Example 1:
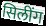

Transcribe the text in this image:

सिलींग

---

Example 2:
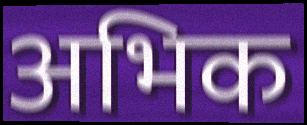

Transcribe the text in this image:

अभिक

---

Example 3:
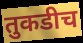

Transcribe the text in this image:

तुकडीच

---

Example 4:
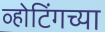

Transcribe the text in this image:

व्होटिंगच्या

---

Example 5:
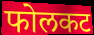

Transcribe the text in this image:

फोलकट